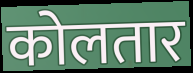
कोलतार